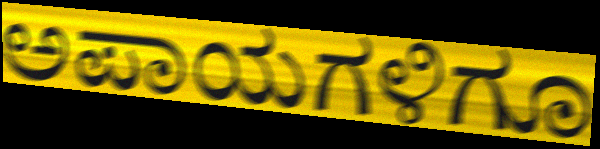
ಅಪಾಯಗಳಿಗೂ